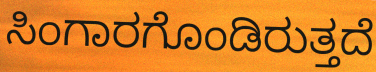
ಸಿಂಗಾರಗೊಂಡಿರುತ್ತದೆ